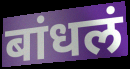
बांधलं